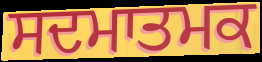
ਸਦਮਾਤਮਕ